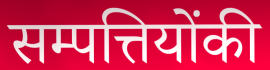
सम्पत्तियोंकी